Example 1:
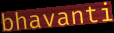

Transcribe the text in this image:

bhavanti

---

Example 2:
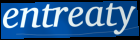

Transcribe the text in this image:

entreaty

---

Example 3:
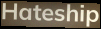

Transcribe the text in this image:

Hateship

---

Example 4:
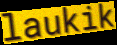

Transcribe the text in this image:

laukik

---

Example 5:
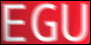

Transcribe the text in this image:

EGU